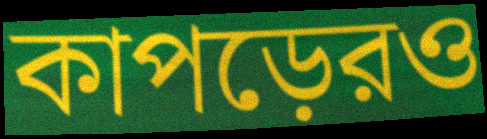
কাপড়েরও